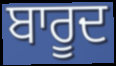
ਬਾਰੂਦ